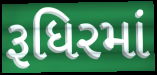
રૂધિરમાં